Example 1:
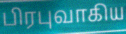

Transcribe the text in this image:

பிரபுவாகிய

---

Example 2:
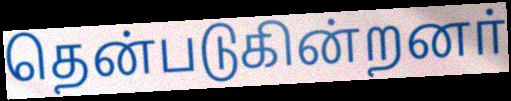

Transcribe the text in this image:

தென்படுகின்றனர்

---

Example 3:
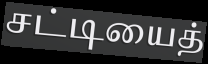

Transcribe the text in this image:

சட்டியைத்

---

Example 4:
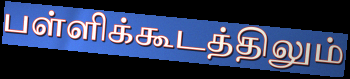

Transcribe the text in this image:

பள்ளிக்கூடத்திலும்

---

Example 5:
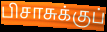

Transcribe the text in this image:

பிசாசுக்குப்